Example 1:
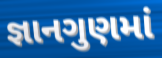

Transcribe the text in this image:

જ્ઞાનગુણમાં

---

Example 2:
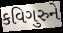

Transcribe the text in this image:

કવિગુરુને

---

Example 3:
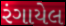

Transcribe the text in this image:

રંગાયેલ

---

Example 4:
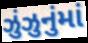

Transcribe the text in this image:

ઝુંઝુનુંમાં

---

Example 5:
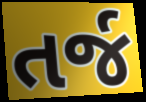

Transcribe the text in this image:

તર્જ